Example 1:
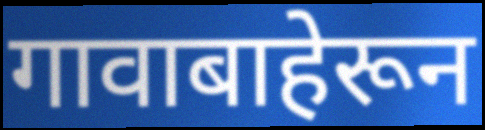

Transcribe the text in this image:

गावाबाहेरून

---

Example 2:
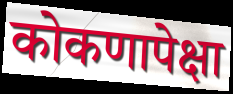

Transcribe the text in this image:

कोकणापेक्षा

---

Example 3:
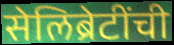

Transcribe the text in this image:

सेलिब्रेटींची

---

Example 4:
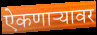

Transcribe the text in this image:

ऐकणाऱ्यावर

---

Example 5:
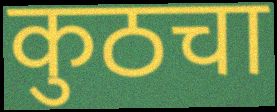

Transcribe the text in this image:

कुठचा